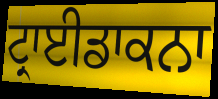
ਟ੍ਰਾਈਡਾਕਨਾ